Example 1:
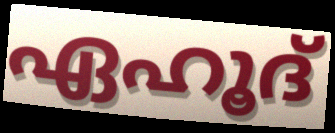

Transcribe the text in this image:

ഏഹൂദ്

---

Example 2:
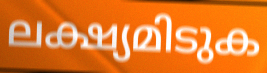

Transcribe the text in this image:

ലക്ഷ്യമിടുക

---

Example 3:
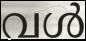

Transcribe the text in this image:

വൾ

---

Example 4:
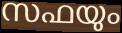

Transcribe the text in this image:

സഫയും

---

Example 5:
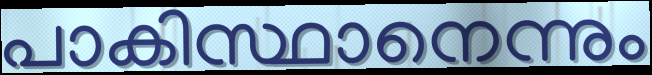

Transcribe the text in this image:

പാകിസ്ഥാനെന്നും